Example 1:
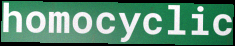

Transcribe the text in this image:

homocyclic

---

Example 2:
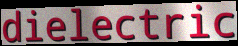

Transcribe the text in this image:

dielectric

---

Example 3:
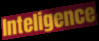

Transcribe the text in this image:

Inteligence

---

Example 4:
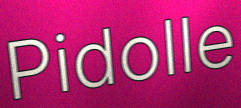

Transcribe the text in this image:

Pidolle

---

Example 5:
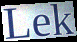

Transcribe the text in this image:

Lek